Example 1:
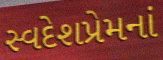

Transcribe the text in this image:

સ્વદેશપ્રેમનાં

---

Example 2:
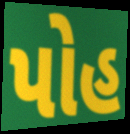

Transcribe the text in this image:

પોહ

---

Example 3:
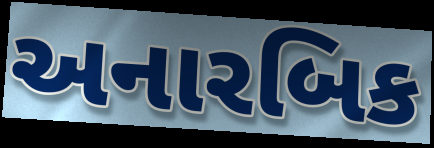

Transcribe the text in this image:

અનારબિક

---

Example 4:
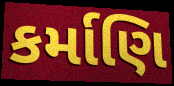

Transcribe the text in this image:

કર્માણિ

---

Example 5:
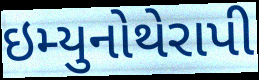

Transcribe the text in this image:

ઇમ્યુનોથેરાપી